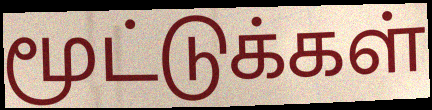
மூட்டுக்கள்